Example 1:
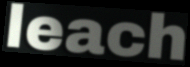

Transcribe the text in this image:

leach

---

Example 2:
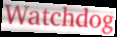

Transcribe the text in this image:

Watchdog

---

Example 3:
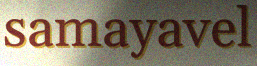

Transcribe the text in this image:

samayavel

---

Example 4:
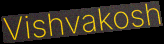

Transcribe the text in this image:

Vishvakosh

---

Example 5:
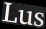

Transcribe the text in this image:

Lus